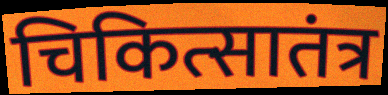
चिकित्सातंत्र